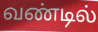
வண்டில்